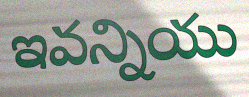
ఇవన్నియు